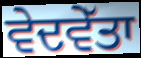
ਵੇਦਵੇੱਤਾ